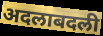
अदलाबदली